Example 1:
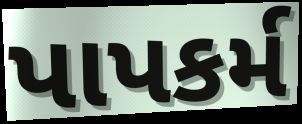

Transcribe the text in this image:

પાપકર્મ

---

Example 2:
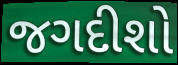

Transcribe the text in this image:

જગદીશો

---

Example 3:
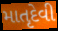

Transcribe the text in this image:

માતૃદેવી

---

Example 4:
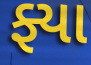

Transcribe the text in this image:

ફ્યા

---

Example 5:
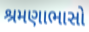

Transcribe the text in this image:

શ્રમણાભાસો